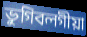
ভুগিবলগীয়া